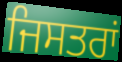
ਜਿਸਤਰਾਂ